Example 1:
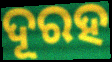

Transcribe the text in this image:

ଦୂରହ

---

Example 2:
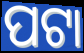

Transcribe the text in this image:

ପଟା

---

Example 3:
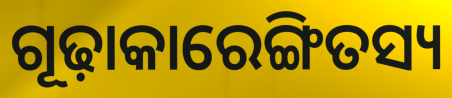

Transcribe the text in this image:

ଗୂଢ଼ାକାରେଙ୍ଗିତସ୍ୟ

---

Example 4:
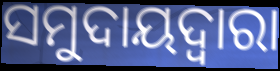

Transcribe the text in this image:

ସମୁଦାୟଦ୍ୱାରା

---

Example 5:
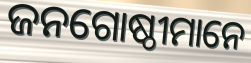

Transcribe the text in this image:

ଜନଗୋଷ୍ଠୀମାନେ